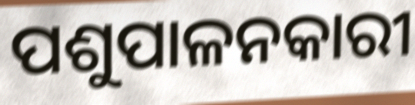
ପଶୁପାଳନକାରୀ